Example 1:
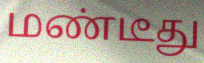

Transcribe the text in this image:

மண்டீது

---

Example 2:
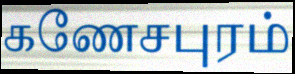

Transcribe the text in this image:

கணேசபுரம்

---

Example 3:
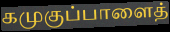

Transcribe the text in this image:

கமுகுப்பாளைத்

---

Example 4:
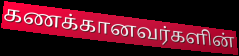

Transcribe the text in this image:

கணக்கானவர்களின்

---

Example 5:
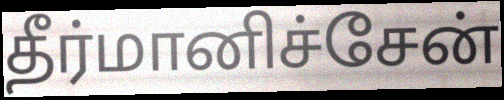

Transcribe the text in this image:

தீர்மானிச்சேன்